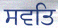
ਸਵਤਿ